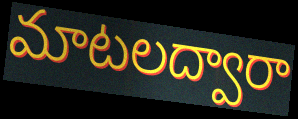
మాటలద్వారా